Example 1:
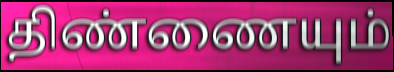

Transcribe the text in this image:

திண்ணையும்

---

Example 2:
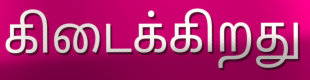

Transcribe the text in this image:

கிடைக்கிறது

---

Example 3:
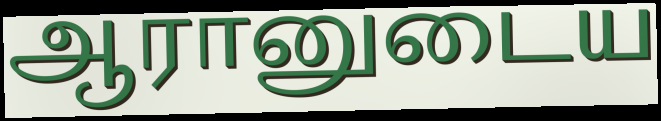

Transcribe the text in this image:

ஆரானுடைய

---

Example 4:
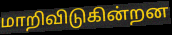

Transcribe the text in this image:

மாறிவிடுகின்றன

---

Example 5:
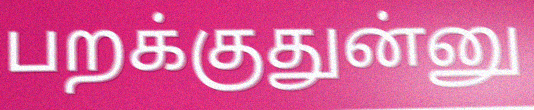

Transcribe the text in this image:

பறக்குதுன்னு